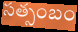
సత్సంబం